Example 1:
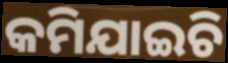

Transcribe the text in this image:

କମିଯାଇଚି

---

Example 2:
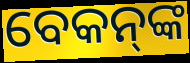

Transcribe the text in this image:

ବେକନ୍‌ଙ୍କ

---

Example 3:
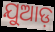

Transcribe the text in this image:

ଯୁଆଡ଼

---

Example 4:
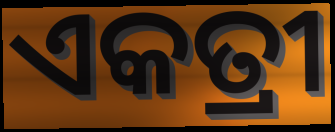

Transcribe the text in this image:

ଏକତ୍ରୀ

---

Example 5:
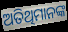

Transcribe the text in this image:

ଅତିଥିମାନଙ୍କ